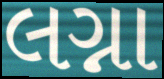
લગ્ના